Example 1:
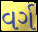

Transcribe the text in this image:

વર્ગ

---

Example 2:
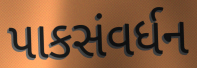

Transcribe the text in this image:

પાકસંવર્ધન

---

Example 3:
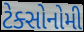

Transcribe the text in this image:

ટેક્સોનોમી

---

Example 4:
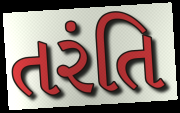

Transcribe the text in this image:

તરંતિ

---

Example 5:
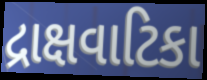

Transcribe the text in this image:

દ્રાક્ષવાટિકા